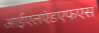
आईएलएंडएफएस